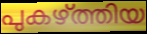
പുകഴ്ത്തിയ